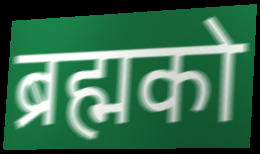
ब्रह्मको